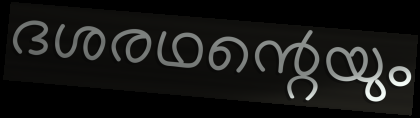
ദശരഥന്റെയും